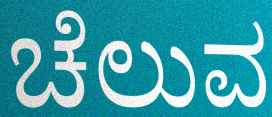
ಚೆಲುವ